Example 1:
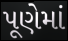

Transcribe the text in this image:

પૂણેમાં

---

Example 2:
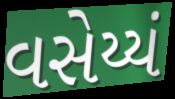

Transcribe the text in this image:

વસેય્યં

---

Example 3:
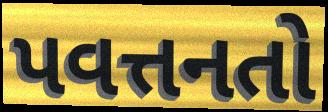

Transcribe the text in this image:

પવત્તનતો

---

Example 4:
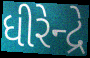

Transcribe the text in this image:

ધીરેન્દ્રે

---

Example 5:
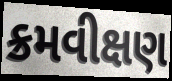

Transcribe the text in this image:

ક્રમવીક્ષણ